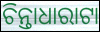
ଚିନ୍ତାଧାରାଟା